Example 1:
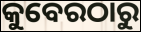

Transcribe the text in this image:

କୁବେରଠାରୁ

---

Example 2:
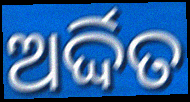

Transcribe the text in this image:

ଅର୍ଦ୍ଦିତ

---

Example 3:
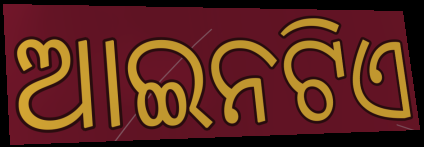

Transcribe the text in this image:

ଆଇନଟିଏ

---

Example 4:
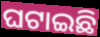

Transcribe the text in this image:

ଘଟାଇଛି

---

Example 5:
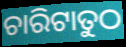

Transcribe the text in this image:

ଚାରିଟାତୁଠ